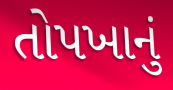
તોપખાનું